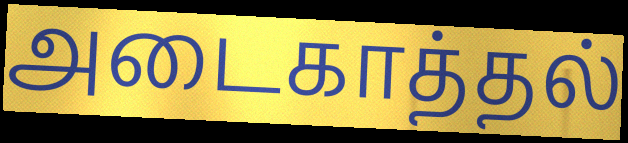
அடைகாத்தல்